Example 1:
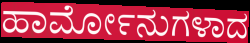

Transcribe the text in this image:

ಹಾರ್ಮೋನುಗಳಾದ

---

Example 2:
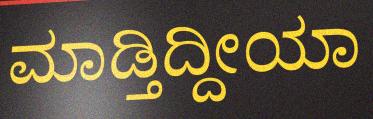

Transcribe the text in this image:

ಮಾಡ್ತಿದ್ದೀಯಾ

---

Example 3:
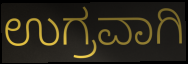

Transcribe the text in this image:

ಉಗ್ರವಾಗಿ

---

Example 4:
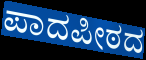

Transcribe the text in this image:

ಪಾದಪೀಠದ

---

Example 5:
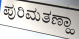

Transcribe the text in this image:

ಪುರಿಮತಣ್ಹಾ